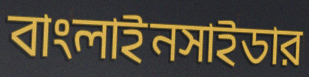
বাংলাইনসাইডার